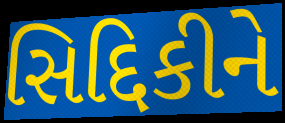
સિદ્દિકીને